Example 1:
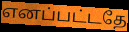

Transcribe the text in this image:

எனப்பட்டதே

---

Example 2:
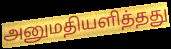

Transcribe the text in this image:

அனுமதியளித்தது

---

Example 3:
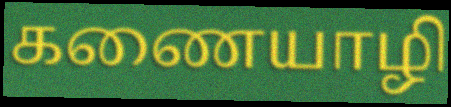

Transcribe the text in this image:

கணையாழி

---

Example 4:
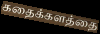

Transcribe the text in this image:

கதைக்களத்தை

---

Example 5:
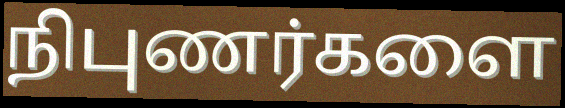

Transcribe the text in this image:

நிபுணர்களை